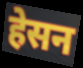
हेसन